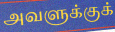
அவளுக்குக்